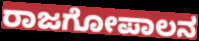
ರಾಜಗೋಪಾಲನ